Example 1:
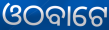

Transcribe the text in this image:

ଓଠବାଟେ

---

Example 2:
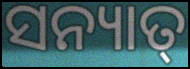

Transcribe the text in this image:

ସନ୍ୟାତ୍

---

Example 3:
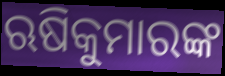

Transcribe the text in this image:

ଋଷିକୁମାରଙ୍କ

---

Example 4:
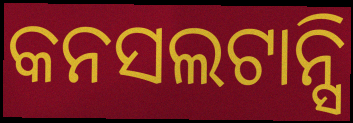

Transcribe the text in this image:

କନସଲଟାନ୍ସି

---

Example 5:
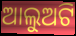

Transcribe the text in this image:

ଆଲୁଅଟି